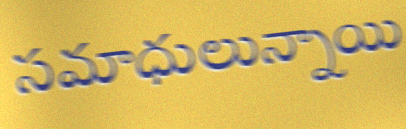
సమాధులున్నాయి